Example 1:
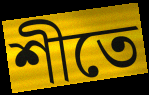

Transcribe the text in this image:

শীতে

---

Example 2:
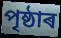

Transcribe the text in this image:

পৃষ্ঠাৰ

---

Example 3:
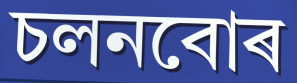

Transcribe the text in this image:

চলনবোৰ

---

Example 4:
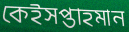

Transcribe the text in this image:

কেইসপ্তাহমান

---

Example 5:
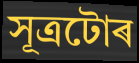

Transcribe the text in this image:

সূত্ৰটোৰ